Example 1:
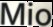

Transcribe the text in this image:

Mio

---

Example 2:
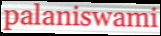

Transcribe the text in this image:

palaniswami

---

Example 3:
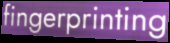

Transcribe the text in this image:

fingerprinting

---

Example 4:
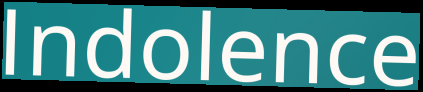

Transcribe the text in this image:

Indolence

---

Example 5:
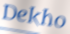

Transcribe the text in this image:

Dekho